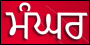
ਮੰਘਰ